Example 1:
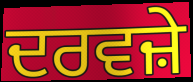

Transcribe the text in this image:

ਦਰਵਜ਼ੇ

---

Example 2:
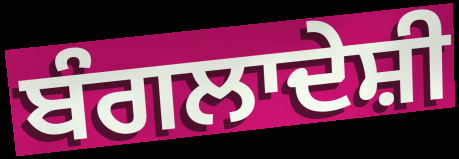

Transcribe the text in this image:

ਬੰਗਲਾਦੇਸ਼ੀ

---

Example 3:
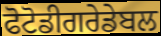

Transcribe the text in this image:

ਫੋਟੋਡੀਗਰੇਡੇਬਲ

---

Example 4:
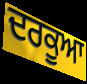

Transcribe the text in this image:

ਦਰਕੂਆ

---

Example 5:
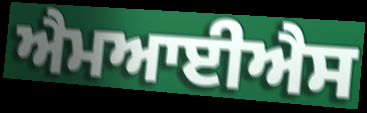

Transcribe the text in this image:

ਐਮਆਈਐਸ